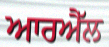
ਆਰਐੱਲ